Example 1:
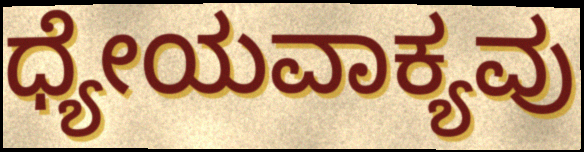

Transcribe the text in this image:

ಧ್ಯೇಯವಾಕ್ಯವು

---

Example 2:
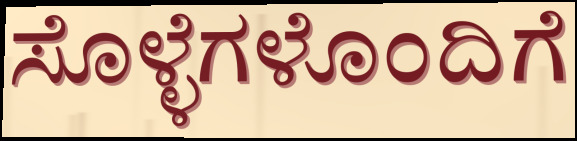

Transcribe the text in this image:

ಸೊಳ್ಳೆಗಳೊಂದಿಗೆ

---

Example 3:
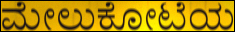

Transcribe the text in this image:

ಮೇಲುಕೋಟೆಯ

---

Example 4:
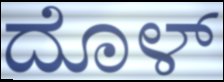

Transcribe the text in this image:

ದೊಳ್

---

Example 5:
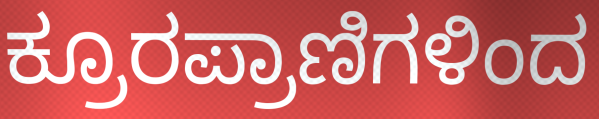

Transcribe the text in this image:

ಕ್ರೂರಪ್ರಾಣಿಗಳಿಂದ